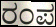
ರಂಪ